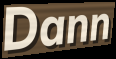
Dann